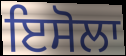
ਇਸੋਲਾ